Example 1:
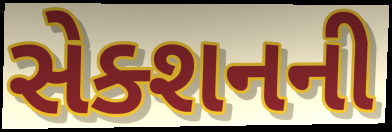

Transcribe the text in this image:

સેક્શનની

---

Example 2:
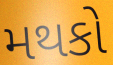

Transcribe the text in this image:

મથકો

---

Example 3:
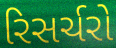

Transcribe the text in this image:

રિસર્ચરો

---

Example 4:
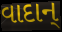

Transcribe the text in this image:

વાદાન્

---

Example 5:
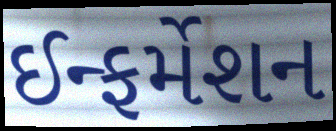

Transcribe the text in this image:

ઈન્ફર્મેશન